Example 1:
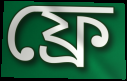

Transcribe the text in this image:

ফ্রে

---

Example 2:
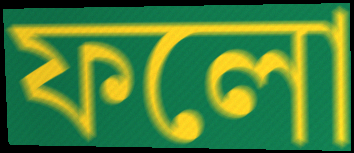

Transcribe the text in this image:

ফলো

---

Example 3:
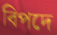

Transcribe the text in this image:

বিপদে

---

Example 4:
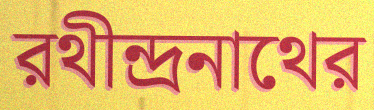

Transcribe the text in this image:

রথীন্দ্রনাথের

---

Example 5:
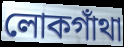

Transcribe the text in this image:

লোকগাঁথা